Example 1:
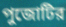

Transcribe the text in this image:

পুজোটির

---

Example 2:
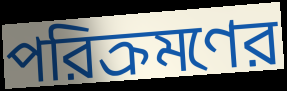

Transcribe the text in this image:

পরিক্রমণের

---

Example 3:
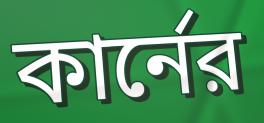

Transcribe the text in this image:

কার্নের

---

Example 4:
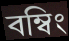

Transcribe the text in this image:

বম্বিং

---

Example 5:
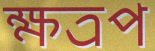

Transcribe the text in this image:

ক্ষত্রপ